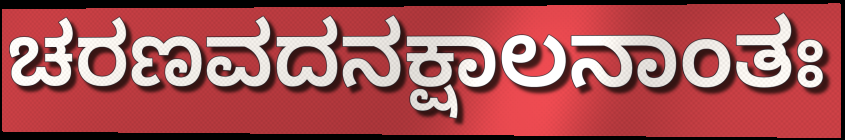
ಚರಣವದನಕ್ಷಾಲನಾಂತಃ